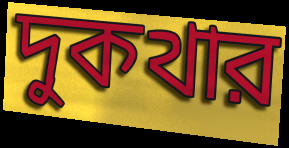
দুকথার